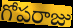
గోపరాజు